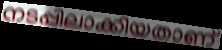
നടപ്പിലാക്കിയതാണ്